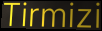
Tirmizi